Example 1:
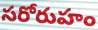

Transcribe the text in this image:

సరోరుహం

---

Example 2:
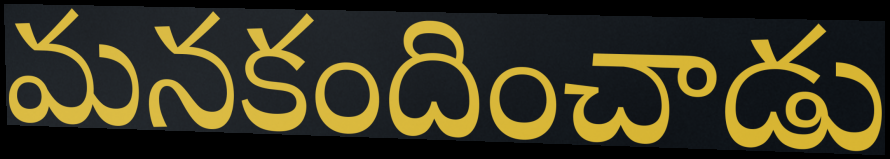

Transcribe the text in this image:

మనకందించాడు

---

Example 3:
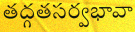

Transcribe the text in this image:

తద్గతసర్వభావా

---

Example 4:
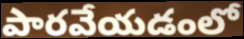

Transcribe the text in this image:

పారవేయడంలో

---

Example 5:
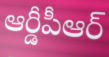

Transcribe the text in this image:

ఆర్డీపీఆర్